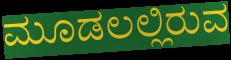
ಮೂಡಲಲ್ಲಿರುವ